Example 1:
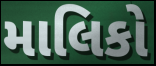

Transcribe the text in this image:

માલિકો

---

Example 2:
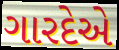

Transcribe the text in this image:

ગારદેએ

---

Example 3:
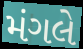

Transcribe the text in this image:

મંગલે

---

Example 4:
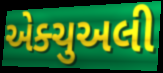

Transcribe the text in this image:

એક્ચુઅલી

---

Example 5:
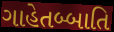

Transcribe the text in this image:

ગાહેતબ્બાતિ